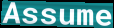
Assume